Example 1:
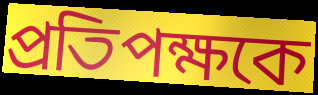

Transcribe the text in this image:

প্রতিপক্ষকে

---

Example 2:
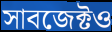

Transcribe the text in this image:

সাবজেক্টও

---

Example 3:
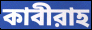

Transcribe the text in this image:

কাবীরাহ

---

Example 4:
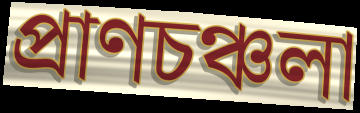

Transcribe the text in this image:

প্রাণচঞ্চলা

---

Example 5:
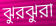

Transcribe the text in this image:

ঝুরঝুরা